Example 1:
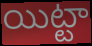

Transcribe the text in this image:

యిట్టా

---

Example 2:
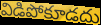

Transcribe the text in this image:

విడిపోకూడదు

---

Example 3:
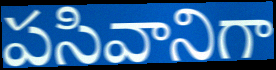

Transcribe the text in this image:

పసివానిగా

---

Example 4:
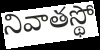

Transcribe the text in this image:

నివాతస్థో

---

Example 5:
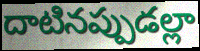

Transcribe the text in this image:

దాటినప్పుడల్లా